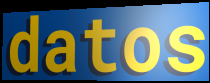
datos